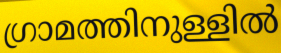
ഗ്രാമത്തിനുള്ളിൽ